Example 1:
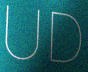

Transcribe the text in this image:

UD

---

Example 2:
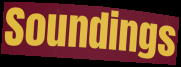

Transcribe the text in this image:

Soundings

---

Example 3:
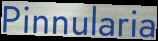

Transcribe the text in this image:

Pinnularia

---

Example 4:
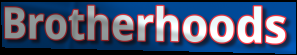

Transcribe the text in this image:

Brotherhoods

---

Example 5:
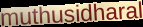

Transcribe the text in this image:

muthusidharal